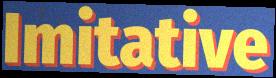
Imitative